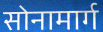
सोनामार्ग